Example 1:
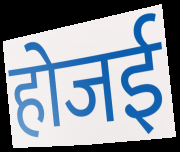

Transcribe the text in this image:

होजई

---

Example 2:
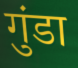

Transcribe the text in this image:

गुंडा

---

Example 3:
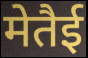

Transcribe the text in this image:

मेतैई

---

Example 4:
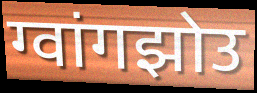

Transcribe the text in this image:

ग्वांगझोउ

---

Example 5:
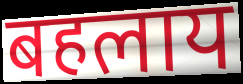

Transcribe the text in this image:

बहलाय